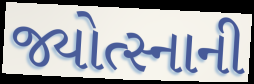
જ્યોત્સ્નાની